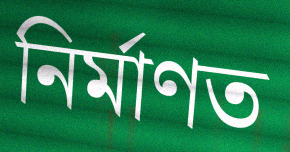
নিৰ্মাণত